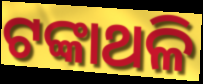
ଟଙ୍କାଥଳି